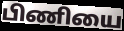
பிணியை